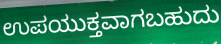
ಉಪಯುಕ್ತವಾಗಬಹುದು